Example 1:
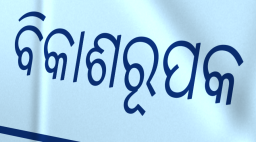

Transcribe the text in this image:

ବିକାଶରୂପକ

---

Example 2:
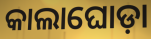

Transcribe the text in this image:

କାଲାଘୋଡ଼ା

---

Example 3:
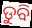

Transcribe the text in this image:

ଡୁବି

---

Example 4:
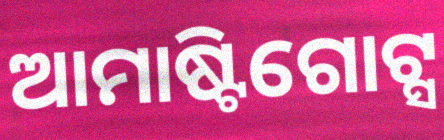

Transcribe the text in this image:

ଆମାଷ୍ଟିଗୋଟ୍ସ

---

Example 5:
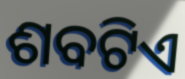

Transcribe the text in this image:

ଶବଟିଏ